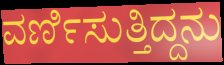
ವರ್ಣಿಸುತ್ತಿದ್ದನು